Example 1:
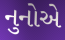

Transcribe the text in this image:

નુનોએ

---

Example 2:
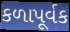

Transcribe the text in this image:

કળાપૂર્વક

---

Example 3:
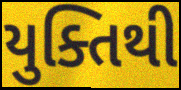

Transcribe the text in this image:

યુક્તિથી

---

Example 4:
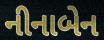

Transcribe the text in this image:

નીનાબેન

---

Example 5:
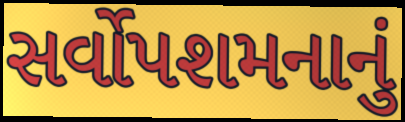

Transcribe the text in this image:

સર્વોપશમનાનું